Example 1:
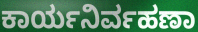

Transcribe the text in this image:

ಕಾರ್ಯನಿರ್ವಹಣಾ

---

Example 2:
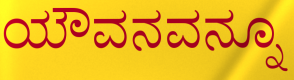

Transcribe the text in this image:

ಯೌವನವನ್ನೂ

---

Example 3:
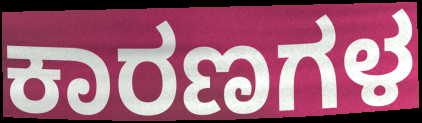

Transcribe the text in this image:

ಕಾರಣಗಳ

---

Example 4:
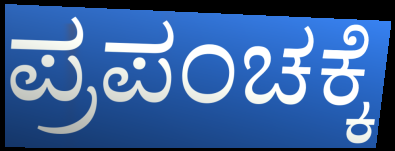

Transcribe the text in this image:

ಪ್ರಪಂಚಕ್ಕೆ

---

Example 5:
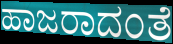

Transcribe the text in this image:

ಹಾಜರಾದಂತೆ